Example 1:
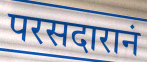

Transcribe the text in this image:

परसदारानं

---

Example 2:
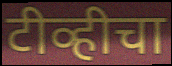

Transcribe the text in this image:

टीव्हीचा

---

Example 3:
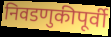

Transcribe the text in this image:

निवडणुकीपूर्वी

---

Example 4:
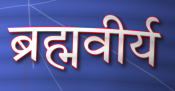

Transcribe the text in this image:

ब्रह्मवीर्य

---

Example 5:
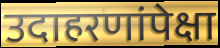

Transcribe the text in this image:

उदाहरणांपेक्षा